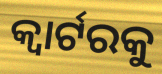
କ୍ୱାର୍ଟରକୁ